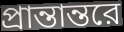
প্রান্তান্তরে